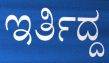
ಇರ್ತಿದ್ದ